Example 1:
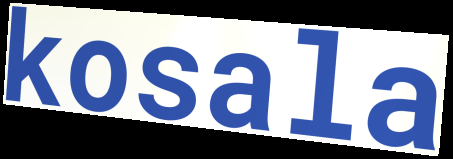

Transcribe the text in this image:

kosala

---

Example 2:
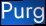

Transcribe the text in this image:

Purg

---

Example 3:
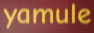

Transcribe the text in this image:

yamule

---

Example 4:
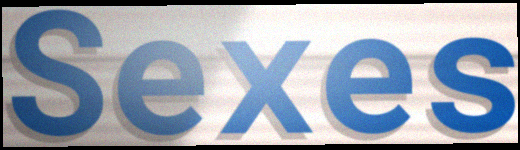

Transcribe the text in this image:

Sexes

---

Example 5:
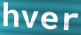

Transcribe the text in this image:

hver